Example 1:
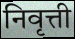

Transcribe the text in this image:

निवृत्ती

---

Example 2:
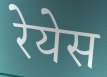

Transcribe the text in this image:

रेयेस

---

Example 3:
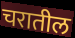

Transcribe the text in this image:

चरातील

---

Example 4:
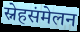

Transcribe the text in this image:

स्नेहसंमेलन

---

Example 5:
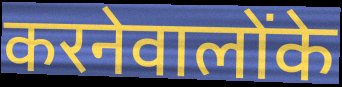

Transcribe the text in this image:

करनेवालोंके